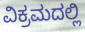
ವಿಕ್ರಮದಲ್ಲಿ